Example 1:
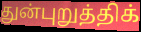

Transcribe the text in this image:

துன்புறுத்திக்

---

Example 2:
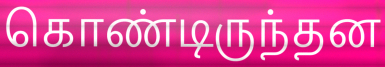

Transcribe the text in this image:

கொண்டிருந்தன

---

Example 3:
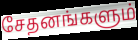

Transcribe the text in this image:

சேதனங்களும்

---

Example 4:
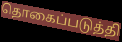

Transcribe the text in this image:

தொகைப்படுத்தி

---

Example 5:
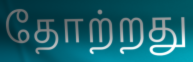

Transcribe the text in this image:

தோற்றது